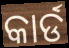
କାର୍ଡ